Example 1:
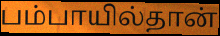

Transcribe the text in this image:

பம்பாயில்தான்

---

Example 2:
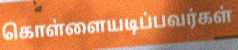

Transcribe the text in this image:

கொள்ளையடிப்பவர்கள்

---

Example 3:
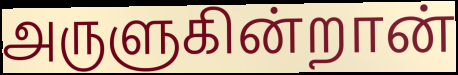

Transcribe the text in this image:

அருளுகின்றான்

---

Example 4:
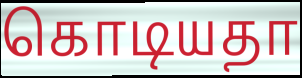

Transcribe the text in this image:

கொடியதா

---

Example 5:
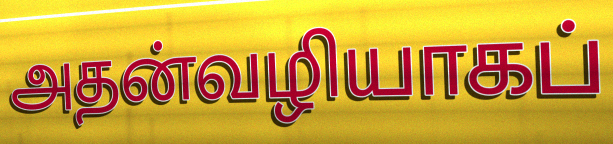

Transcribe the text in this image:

அதன்வழியாகப்